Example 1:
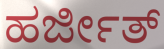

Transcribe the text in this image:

ಹರ್ಜೀತ್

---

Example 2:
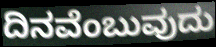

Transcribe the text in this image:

ದಿನವೆಂಬುವುದು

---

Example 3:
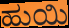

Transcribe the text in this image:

ಹುಯಿ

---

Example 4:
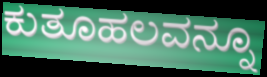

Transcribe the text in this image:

ಕುತೂಹಲವನ್ನೂ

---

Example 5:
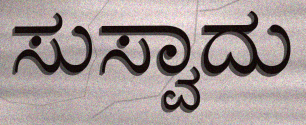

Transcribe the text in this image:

ಸುಸ್ವಾದು